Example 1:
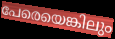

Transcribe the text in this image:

പേരെയെങ്കിലും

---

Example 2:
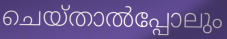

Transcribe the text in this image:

ചെയ്താൽപ്പോലും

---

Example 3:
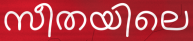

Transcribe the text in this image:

സീതയിലെ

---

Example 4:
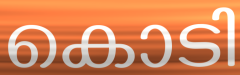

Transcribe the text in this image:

കൊടി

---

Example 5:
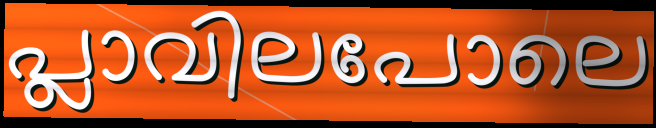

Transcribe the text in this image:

പ്ലാവിലപോലെ